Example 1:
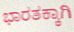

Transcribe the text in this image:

ಭಾರತಕ್ಕಾಗಿ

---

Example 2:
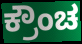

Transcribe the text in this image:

ಕ್ರೌಂಚ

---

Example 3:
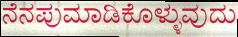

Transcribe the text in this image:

ನೆನಪುಮಾಡಿಕೊಳ್ಳುವುದು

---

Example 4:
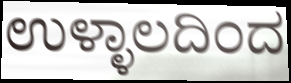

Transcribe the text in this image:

ಉಳ್ಳಾಲದಿಂದ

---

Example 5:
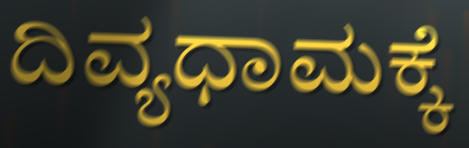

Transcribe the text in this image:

ದಿವ್ಯಧಾಮಕ್ಕೆ